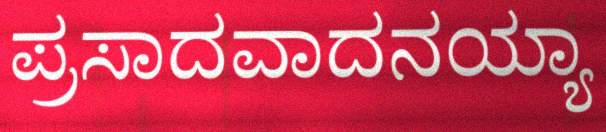
ಪ್ರಸಾದವಾದನಯ್ಯಾ